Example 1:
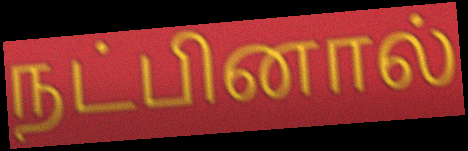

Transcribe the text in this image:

நட்பினால்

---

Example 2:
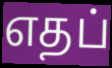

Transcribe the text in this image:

எதப்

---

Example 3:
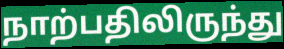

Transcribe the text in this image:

நாற்பதிலிருந்து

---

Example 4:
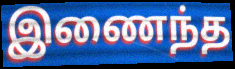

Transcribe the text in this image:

இணைந்த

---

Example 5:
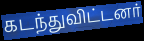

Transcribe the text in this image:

கடந்துவிட்டனர்